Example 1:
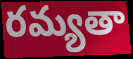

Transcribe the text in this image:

రమ్యతా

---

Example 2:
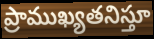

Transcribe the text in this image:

ప్రాముఖ్యతనిస్తూ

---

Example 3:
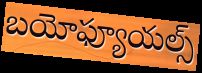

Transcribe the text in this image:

బయోఫ్యూయల్స్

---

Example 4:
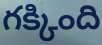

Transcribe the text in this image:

గక్కింది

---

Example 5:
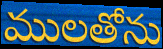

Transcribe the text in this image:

ములతోను